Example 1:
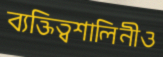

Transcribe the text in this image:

ব্যক্তিত্বশালিনীও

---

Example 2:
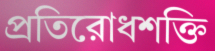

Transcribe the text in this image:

প্রতিরোধশক্তি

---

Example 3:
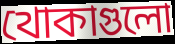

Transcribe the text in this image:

থোকাগুলো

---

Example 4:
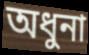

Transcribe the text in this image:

অধুনা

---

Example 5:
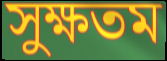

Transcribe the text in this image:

সুক্ষতম